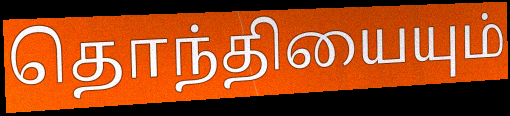
தொந்தியையும்